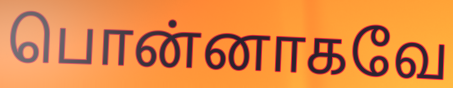
பொன்னாகவே